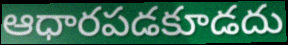
ఆధారపడకూడదు